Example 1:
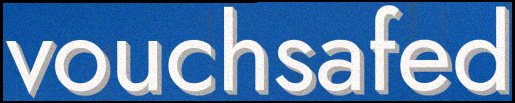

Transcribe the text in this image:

vouchsafed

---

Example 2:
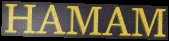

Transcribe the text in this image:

HAMAM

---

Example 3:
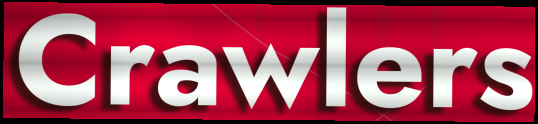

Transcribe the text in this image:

Crawlers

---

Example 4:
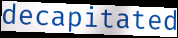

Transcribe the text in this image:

decapitated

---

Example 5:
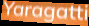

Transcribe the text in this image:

Yaragatti